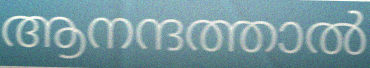
ആനന്ദത്താൽ